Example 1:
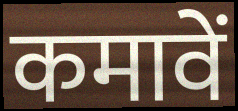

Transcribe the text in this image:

कमावें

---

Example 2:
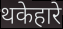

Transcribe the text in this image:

थकेहारे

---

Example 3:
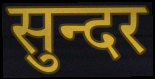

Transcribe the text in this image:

सुन्‍दर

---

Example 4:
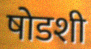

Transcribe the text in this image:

षोडशी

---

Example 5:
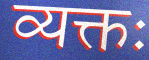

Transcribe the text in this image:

व्यक्तः